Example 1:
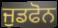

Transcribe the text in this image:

ਜੁਡਫੋਨ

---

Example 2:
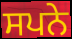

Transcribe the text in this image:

ਸਪਨੇ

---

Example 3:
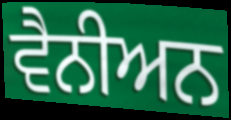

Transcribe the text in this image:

ਵੈਨੀਅਨ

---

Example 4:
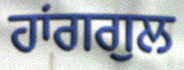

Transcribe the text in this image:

ਹਾਂਗਗੁਲ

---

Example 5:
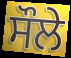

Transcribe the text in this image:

ਸੌਲੇ